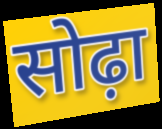
सोढ़ा